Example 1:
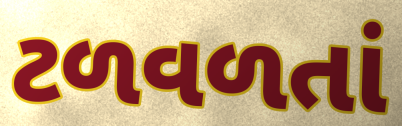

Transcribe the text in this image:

ટળવળતાં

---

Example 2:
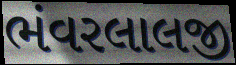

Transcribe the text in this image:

ભંવરલાલજી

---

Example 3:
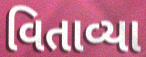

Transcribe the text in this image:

વિતાવ્યા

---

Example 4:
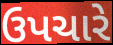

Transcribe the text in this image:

ઉપચારે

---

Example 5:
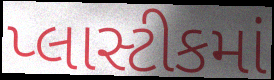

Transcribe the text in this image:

પ્લાસ્ટીકમાં